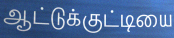
ஆட்டுக்குட்டியை